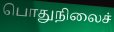
பொதுநிலைச்